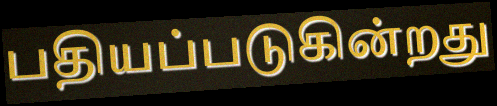
பதியப்படுகின்றது